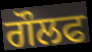
ਗੌਲਫ